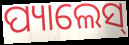
ପ୍ୟାଲେସ୍